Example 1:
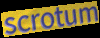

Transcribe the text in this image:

scrotum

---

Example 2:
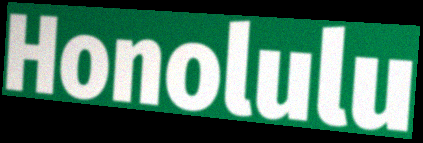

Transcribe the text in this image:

Honolulu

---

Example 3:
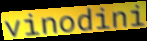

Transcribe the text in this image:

vinodini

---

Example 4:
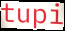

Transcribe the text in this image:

tupi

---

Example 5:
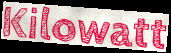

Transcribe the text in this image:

Kilowatt